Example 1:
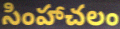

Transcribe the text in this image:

సింహాచలం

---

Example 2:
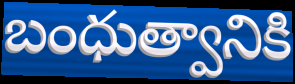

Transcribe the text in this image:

బంధుత్వానికి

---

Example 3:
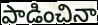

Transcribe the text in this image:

పాడించినా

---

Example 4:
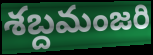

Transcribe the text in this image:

శబ్దమంజరి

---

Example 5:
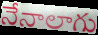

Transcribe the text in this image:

నేనాలాగు